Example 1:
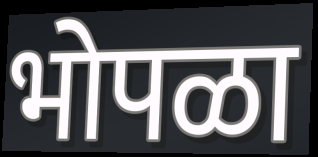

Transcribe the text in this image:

भोपळा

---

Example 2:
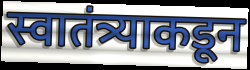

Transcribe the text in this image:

स्वातंत्र्याकडून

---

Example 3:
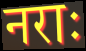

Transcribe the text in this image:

नराः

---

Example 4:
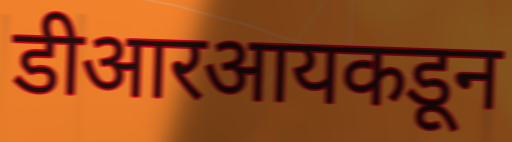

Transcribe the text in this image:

डीआरआयकडून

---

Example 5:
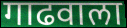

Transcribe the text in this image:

गाढवाला